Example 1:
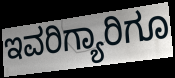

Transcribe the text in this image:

ಇವರಿಗ್ಯಾರಿಗೂ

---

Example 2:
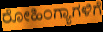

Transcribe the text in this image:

ರೋಹಿಂಗ್ಯಾಗಳಿಗೆ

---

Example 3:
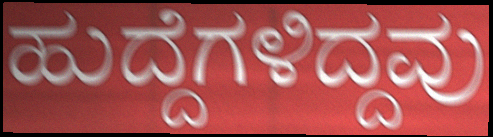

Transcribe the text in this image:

ಹುದ್ದೆಗಳಿದ್ದವು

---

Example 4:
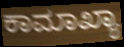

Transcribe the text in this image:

ಕಾಮಾಖ್ಯಾ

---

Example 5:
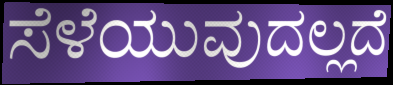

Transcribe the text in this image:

ಸೆಳೆಯುವುದಲ್ಲದೆ